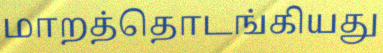
மாறத்தொடங்கியது